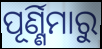
ପୂର୍ଣ୍ଣିମାରୁ